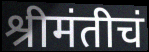
श्रीमंतीचं